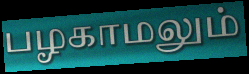
பழகாமலும்